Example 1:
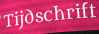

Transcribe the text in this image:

Tijdschrift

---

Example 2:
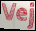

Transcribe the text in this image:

Vej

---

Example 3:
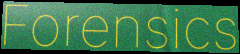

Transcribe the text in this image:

Forensics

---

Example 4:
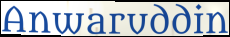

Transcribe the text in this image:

Anwaruddin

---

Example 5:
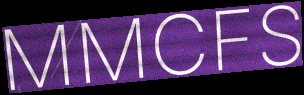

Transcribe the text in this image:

MMCFS